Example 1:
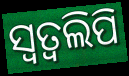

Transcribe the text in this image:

ସ୍ୱତ୍ୱଲିପି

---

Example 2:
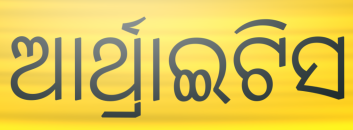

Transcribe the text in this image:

ଆର୍ଥ୍ରାଇଟିସ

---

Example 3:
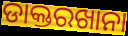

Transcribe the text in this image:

ଡାକ୍ତରଖାନା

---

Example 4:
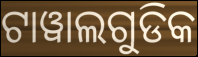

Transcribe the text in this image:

ଟାୱାଲଗୁଡିକ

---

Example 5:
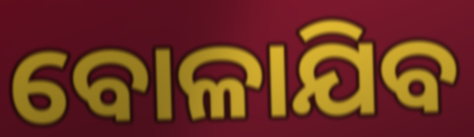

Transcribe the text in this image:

ବୋଳାଯିବ